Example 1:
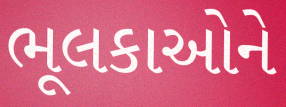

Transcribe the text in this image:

ભૂલકાઓને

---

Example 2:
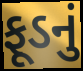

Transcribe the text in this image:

ફૂડનું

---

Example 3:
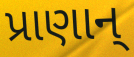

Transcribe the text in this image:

પ્રાણાન્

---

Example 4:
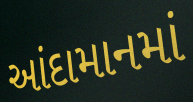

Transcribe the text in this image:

આંદામાનમાં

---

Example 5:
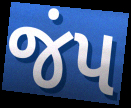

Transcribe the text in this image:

જંપ